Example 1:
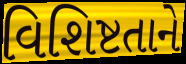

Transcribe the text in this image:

વિશિષ્ટતાને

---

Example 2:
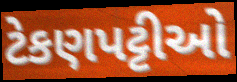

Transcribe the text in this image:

ટેકણપટ્ટીઓ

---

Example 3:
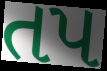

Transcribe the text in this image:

તપ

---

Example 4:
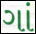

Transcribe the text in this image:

ગાં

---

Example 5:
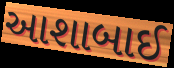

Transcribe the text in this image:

આશાબાઈ